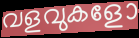
വളവുകളോ